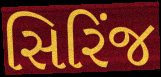
સિરિંજ